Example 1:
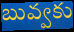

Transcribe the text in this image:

బువ్వకు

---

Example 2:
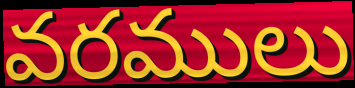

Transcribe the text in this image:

వరములు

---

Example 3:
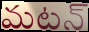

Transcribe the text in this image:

మటన్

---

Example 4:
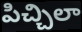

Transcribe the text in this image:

పిచ్చిలా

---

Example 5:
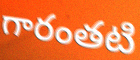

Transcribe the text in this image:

గారంతటి